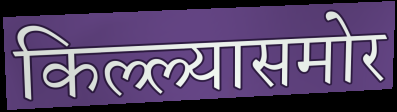
किल्ल्यासमोर